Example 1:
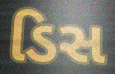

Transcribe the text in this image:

ડિસ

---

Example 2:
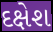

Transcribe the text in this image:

દક્ષેશ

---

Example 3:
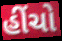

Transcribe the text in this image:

હીંચો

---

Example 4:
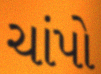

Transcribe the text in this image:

ચાંપો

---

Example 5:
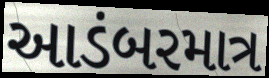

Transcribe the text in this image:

આડંબરમાત્ર